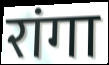
रांगा